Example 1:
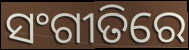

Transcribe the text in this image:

ସଂଗୀତିରେ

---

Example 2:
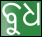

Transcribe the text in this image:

ବୁଧ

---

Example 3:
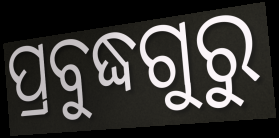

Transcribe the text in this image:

ପ୍ରବୁଦ୍ଧଗୁରୁ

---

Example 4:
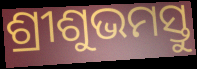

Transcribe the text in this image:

ଶ୍ରୀଶୁଭମସ୍ତୁ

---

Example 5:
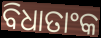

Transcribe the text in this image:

ବିଧାତାଂକ